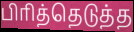
பிரித்தெடுத்த